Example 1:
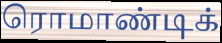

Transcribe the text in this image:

ரொமாண்டிக்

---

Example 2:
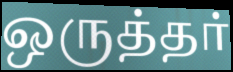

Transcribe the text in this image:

ஒருத்தர்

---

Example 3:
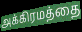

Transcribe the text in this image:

அக்கிரமத்தை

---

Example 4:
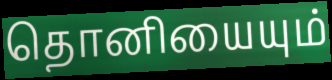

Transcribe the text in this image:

தொனியையும்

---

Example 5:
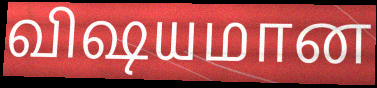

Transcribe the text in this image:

விஷயமான